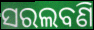
ସରଲବଣି